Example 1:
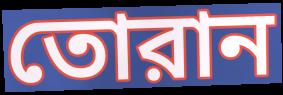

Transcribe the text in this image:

তোরান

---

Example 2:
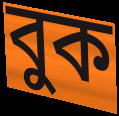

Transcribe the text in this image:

বুক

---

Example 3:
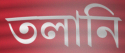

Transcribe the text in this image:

তলানি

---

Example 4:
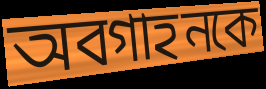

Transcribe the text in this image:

অবগাহনকে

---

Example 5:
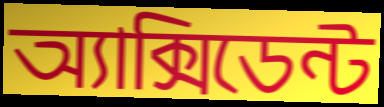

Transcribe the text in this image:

অ্যাক্সিডেন্ট